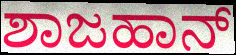
ಶಾಜಹಾನ್